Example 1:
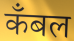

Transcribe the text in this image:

कँबल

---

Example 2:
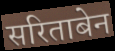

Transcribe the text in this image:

सरिताबेन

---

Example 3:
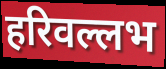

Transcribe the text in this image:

हरिवल्लभ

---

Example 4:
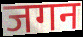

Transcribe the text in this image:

जगन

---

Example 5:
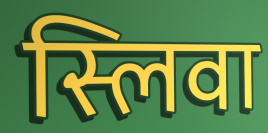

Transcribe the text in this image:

स्लिवा